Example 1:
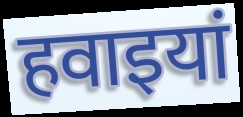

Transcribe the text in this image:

हवाइयां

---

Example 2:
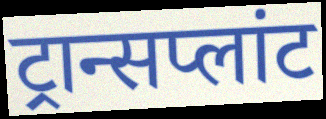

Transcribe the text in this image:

ट्रान्सप्लांट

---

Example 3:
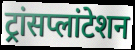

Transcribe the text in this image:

ट्रांसप्लांटेशन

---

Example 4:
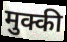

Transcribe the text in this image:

मुक्की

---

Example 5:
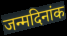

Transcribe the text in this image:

जन्मदिनांक